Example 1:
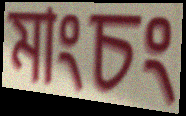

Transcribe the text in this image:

মাংচং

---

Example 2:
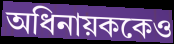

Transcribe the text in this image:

অধিনায়ককেও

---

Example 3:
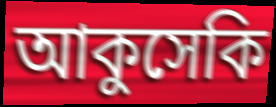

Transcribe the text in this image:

আকুসেকি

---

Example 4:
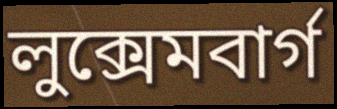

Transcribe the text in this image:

লুক্সেমবার্গ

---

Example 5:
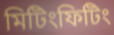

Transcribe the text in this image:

মিটিংফিটিং